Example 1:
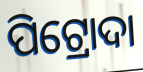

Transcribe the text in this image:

ପିଟ୍ରୋଦା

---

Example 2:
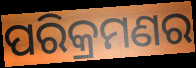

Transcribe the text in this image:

ପରିକ୍ରମଣର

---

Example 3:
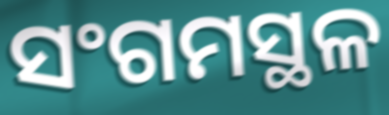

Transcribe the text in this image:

ସଂଗମସ୍ଥଳ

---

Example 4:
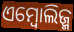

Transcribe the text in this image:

ଏମ୍ବୋଲିଜ୍ମ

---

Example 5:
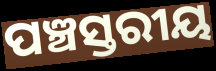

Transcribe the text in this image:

ପଞ୍ଚସ୍ତରୀୟ